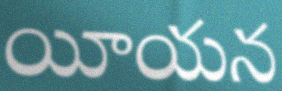
యీయన